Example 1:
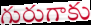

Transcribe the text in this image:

గురుగాకు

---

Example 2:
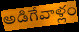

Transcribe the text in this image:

అడిగేవాళ్లం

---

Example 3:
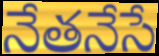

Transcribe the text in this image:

నేతనేసే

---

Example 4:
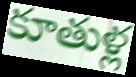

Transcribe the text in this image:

కూతుళ్ల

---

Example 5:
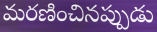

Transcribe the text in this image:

మరణించినప్పుడు